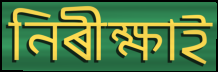
নিৰীক্ষাই